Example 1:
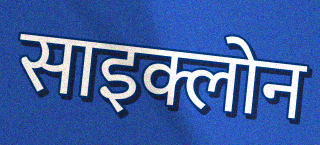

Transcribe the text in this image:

साइक्लोन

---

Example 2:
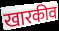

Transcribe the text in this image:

खारकीव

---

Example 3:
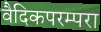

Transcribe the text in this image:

वैदिकपरम्परा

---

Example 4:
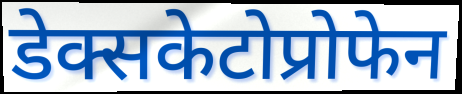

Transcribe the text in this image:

डेक्सकेटोप्रोफेन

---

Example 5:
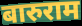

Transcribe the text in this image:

बारुराम